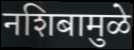
नशिबामुळे